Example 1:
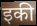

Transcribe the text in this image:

इकी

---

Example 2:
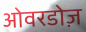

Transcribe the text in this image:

ओवरडोज़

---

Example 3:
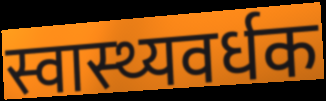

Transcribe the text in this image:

स्वास्थ्यवर्धक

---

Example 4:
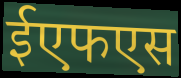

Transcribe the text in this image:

ईएफएस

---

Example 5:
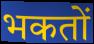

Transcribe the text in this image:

भकतों